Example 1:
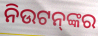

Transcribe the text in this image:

ନିଉଟନ୍‌ଙ୍କର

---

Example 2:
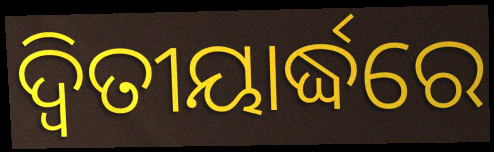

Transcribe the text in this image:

ଦ୍ବିତୀୟାର୍ଦ୍ଧରେ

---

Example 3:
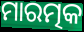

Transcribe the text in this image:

ମାରତ୍ମକ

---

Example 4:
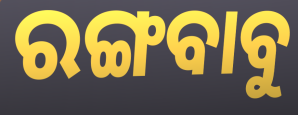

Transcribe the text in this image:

ରଙ୍ଗବାବୁ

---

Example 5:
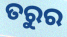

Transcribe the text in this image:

ତରୁର